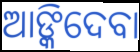
ଆଙ୍କିଦେବା